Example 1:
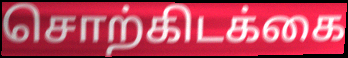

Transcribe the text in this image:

சொற்கிடக்கை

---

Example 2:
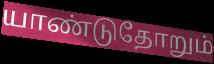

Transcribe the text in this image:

யாண்டுதோறும்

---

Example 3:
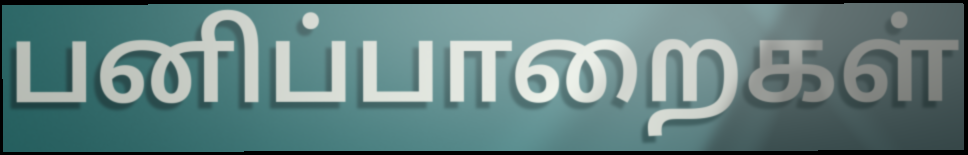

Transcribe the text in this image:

பனிப்பாறைகள்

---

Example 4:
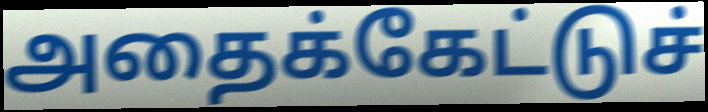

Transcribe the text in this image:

அதைக்கேட்டுச்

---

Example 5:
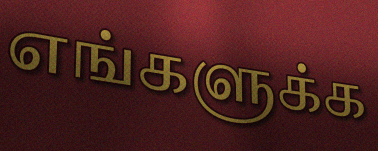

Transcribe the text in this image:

எங்களுக்க